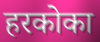
हरकोका